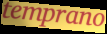
temprano